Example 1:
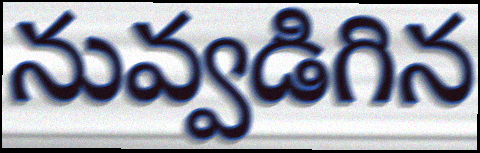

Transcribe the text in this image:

నువ్వడిగిన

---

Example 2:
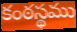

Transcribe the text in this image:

కంఠస్థము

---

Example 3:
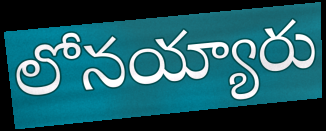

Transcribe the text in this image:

లోనయ్యారు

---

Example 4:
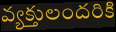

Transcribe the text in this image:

వ్యక్తులందరికి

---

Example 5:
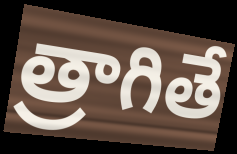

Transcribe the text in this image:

త్రాగితే